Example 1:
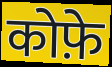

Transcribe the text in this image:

कोफ़े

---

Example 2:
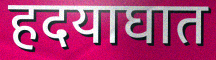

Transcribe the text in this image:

हदयाघात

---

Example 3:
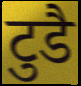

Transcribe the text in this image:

टुडै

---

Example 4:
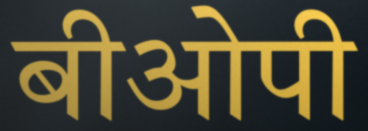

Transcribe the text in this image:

बीओपी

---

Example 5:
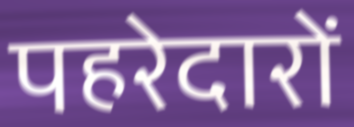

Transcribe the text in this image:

पहरेदारों